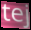
tej